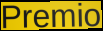
Premio